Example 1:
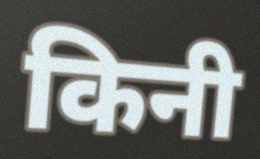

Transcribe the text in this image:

किनी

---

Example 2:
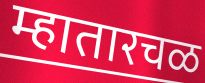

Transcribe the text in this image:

म्हातारचळ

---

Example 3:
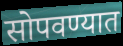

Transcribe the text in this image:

सोपवण्यात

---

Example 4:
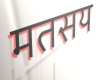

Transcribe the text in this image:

मतसय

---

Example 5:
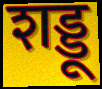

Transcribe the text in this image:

शड्डू